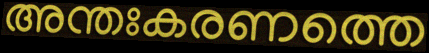
അന്തഃകരണത്തെ